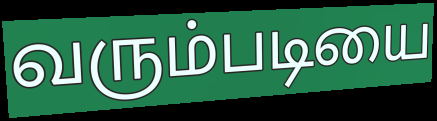
வரும்படியை